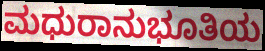
ಮಧುರಾನುಭೂತಿಯ